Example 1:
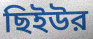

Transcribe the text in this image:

ছিইউর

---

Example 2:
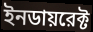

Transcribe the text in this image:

ইনডায়রেক্ট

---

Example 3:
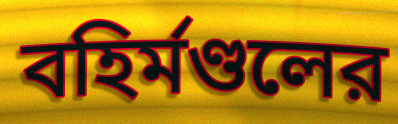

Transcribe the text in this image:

বহির্মণ্ডলের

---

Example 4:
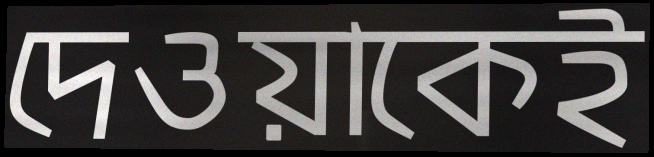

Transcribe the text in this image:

দেওয়াকেই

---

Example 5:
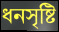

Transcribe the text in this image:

ধনসৃষ্টি